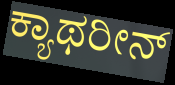
ಕ್ಯಾಥರೀನ್